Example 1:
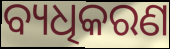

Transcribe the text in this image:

ବ୍ୟଧିକରଣ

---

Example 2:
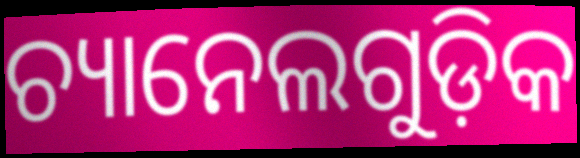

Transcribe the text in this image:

ଚ୍ୟାନେଲଗୁଡ଼ିକ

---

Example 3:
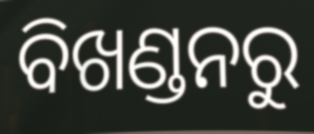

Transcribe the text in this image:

ବିଖଣ୍ଡନରୁ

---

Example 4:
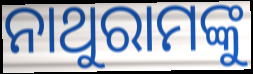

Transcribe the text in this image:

ନାଥୁରାମଙ୍କୁ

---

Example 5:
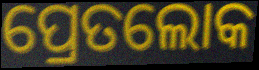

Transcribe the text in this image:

ପ୍ରେତଲୋକ